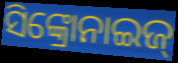
ସିଙ୍କ୍ରୋନାଇଜ୍